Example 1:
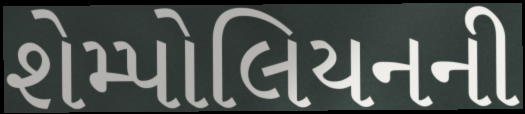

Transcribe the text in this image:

શેમ્પોલિયનની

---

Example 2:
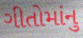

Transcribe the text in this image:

ગીતોમાંનુ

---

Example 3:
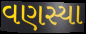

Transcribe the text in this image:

વણસ્યા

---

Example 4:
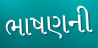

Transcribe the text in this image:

ભાષણની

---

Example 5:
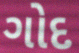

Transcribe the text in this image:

ગોદ